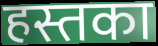
हस्तका